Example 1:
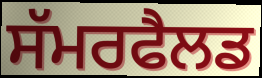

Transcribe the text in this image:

ਸੱਮਰਫੈਲਡ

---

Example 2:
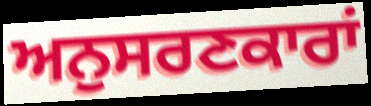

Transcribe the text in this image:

ਅਨੁਸਰਣਕਾਰਾਂ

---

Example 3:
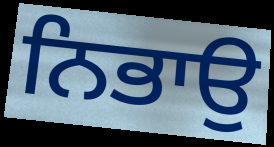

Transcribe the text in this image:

ਨਿਭਾਉ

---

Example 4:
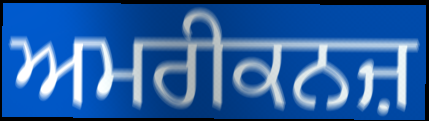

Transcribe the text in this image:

ਅਮਰੀਕਨਜ਼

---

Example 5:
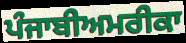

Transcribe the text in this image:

ਪੰਜਾਬੀਅਮਰੀਕਾ